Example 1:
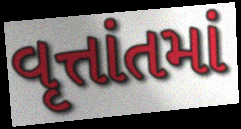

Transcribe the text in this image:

વૃત્તાંતમાં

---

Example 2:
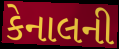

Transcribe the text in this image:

કેનાલની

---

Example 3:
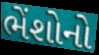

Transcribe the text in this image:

ભેંશોનો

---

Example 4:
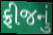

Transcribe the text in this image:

ફ્રીજનું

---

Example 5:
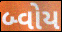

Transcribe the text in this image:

બ્વોય